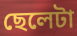
ছেলেটা